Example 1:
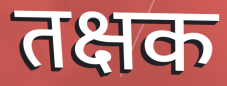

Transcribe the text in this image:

तक्षक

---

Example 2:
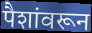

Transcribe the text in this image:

पैशांवरून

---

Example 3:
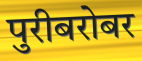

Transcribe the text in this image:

पुरीबरोबर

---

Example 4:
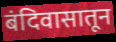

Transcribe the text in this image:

बंदिवासातून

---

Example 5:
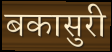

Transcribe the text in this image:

बकासुरी